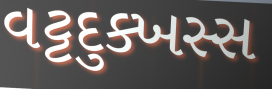
વટ્ટદુક્ખસ્સ